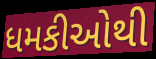
ધમકીઓથી